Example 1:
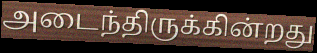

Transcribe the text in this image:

அடைந்திருக்கின்றது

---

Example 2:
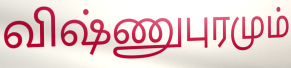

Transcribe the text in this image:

விஷ்ணுபுரமும்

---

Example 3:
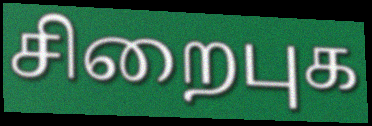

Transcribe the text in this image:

சிறைபுக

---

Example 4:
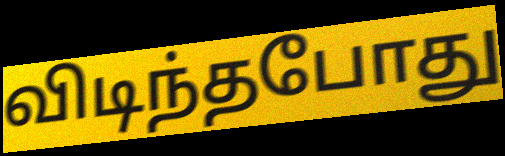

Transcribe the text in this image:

விடிந்தபோது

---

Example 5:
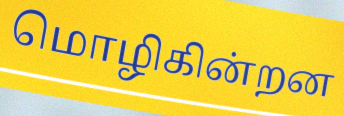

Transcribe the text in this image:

மொழிகின்றன